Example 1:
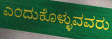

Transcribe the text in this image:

ಎಂದುಕೊಳ್ಳುವವರು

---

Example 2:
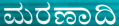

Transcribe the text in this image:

ಮರಣಾದಿ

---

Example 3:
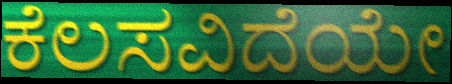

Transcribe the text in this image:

ಕೆಲಸವಿದೆಯೇ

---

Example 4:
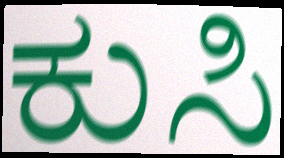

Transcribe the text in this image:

ಕುಸಿ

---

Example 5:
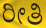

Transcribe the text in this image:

ರೀತಿ